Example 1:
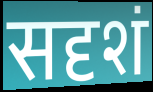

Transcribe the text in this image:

सदृशं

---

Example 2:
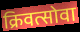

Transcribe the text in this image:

क्रिवत्सोवा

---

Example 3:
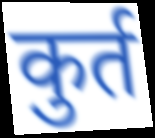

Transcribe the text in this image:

कुर्त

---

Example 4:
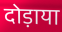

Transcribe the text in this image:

दोड़ाया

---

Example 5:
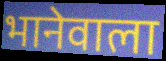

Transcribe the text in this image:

भानेवाला